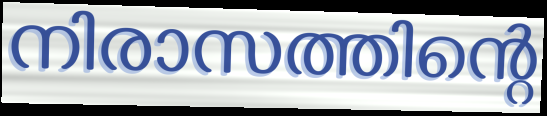
നിരാസത്തിന്റെ